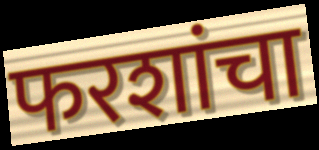
फरशांचा